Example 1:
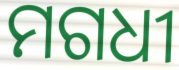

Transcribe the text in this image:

ମଗଧୀ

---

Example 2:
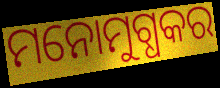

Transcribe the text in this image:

ମନୋମୁଗ୍ଧକର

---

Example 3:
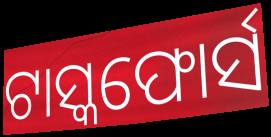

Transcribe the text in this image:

ଟାସ୍କଫୋର୍ସ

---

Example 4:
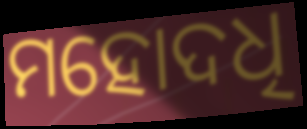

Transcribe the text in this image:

ମହୋଦଧି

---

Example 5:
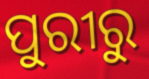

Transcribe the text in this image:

ପୁରୀରୁ